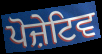
ਪੋਜ਼ੇਟਿਵ